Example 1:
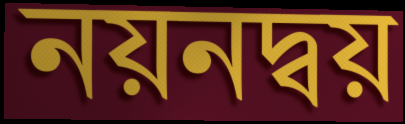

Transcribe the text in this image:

নয়নদ্বয়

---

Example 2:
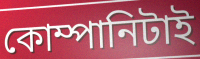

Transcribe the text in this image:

কোম্পানিটাই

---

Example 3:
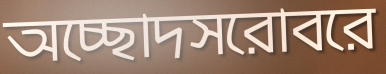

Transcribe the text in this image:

অচ্ছোদসরোবরে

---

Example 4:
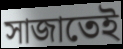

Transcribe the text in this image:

সাজাতেই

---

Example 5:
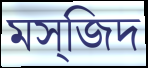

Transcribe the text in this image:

মস্জিদ